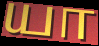
யா